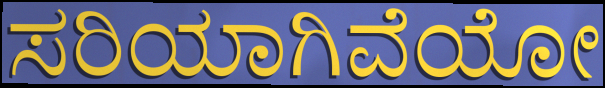
ಸರಿಯಾಗಿವೆಯೋ